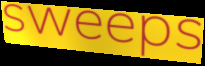
sweeps